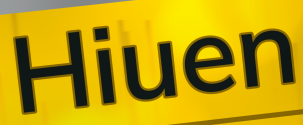
Hiuen